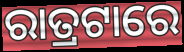
ରାତ୍ରଟାରେ